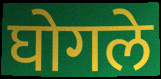
घोगले